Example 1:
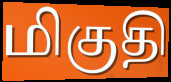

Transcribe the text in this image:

மிகுதி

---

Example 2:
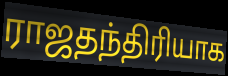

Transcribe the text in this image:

ராஜதந்திரியாக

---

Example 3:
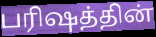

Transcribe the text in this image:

பரிஷத்தின்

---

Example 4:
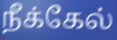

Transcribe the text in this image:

நீக்கேல்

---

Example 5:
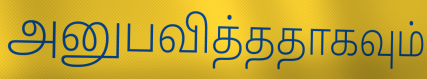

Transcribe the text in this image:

அனுபவித்ததாகவும்